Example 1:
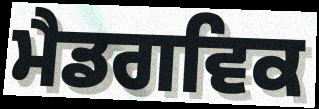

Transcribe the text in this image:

ਮੈਡਗਵਿਕ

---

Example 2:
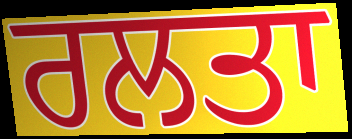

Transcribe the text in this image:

ਰਲਤਾ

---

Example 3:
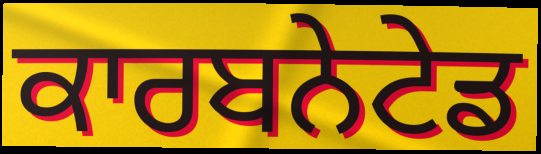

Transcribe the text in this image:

ਕਾਰਬਨੇਟੇਡ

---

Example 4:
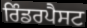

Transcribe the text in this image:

ਰਿੰਡਰਪੈਸਟ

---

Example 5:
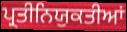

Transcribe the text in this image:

ਪ੍ਰਤੀਨਿਯੁਕਤੀਆਂ